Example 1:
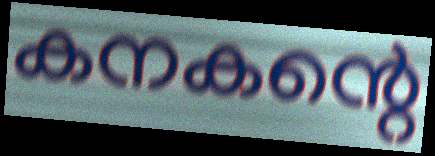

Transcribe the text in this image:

കനകന്റെ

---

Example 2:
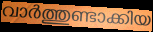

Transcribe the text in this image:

വാർത്തുണ്ടാക്കിയ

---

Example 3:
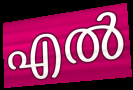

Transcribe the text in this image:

എൽ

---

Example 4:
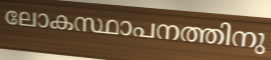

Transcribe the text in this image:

ലോകസ്ഥാപനത്തിനു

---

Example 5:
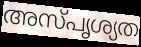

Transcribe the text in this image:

അസ്പൃശ്യത